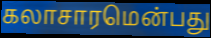
கலாசாரமென்பது